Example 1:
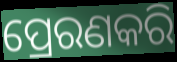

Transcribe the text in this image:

ପ୍ରେରଣକରି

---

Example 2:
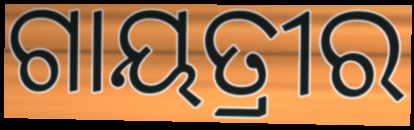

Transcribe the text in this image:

ଗାୟତ୍ରୀର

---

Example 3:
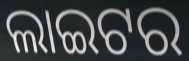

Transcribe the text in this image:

ଲାଇଟର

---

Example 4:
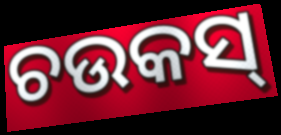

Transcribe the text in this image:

ଚଉକସ୍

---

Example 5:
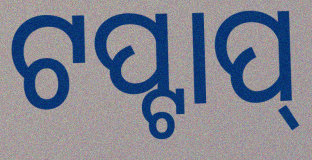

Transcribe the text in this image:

ଟପ୍ଟାପ୍